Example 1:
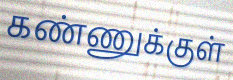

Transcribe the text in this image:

கண்ணுக்குள்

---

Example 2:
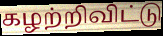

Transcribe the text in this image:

கழற்றிவிட்டு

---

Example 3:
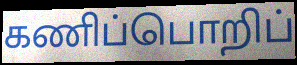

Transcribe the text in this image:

கணிப்பொறிப்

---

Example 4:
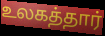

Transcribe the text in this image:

உலகத்தார்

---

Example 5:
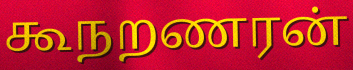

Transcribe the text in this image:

கூநறணரன்